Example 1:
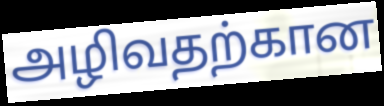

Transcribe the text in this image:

அழிவதற்கான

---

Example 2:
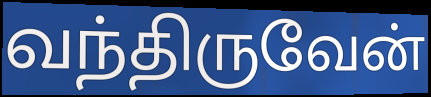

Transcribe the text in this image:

வந்திருவேன்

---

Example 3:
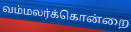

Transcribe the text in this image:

வம்மலர்க்கொன்றை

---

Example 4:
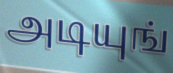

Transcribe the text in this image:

அடியுங்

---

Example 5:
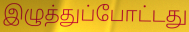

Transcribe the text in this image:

இழுத்துப்போட்டது